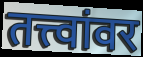
तत्त्वांवर